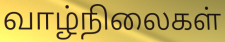
வாழ்நிலைகள்